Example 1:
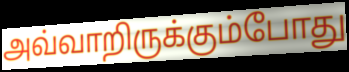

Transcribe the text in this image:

அவ்வாறிருக்கும்போது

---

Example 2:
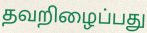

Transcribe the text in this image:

தவறிழைப்பது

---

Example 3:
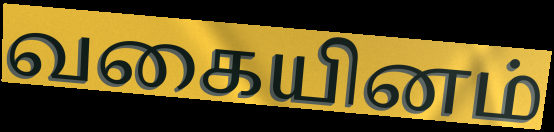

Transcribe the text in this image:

வகையினம்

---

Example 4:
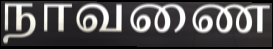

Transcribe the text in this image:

நாவணை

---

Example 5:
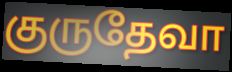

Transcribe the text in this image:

குருதேவா